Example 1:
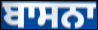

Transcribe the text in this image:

ਬਾਸਨਾ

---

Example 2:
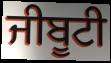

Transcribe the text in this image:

ਜੀਬੂਟੀ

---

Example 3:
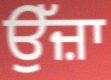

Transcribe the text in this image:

ਉੱਜ਼ਾ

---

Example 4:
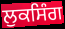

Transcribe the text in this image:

ਲੁਕਸਿੰਗ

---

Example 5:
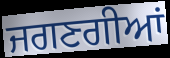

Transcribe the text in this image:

ਜਗਣਗੀਆਂ